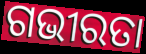
ଗଭୀରତା